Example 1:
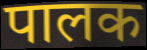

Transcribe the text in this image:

पालक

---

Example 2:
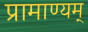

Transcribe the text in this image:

प्रामाण्यम्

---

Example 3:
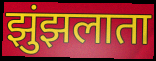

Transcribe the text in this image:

झुंझलाता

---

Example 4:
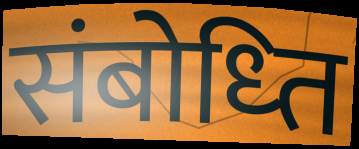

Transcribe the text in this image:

संबोध्ति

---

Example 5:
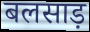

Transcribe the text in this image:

बलसाड़